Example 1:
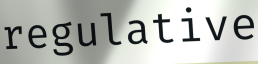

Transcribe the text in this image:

regulative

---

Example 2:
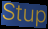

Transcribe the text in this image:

Stup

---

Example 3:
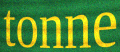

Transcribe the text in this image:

tonne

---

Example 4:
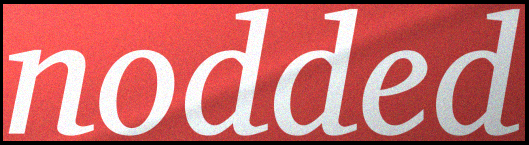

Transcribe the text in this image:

nodded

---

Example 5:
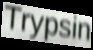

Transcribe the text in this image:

Trypsin